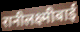
रानीलक्ष्मीबाई